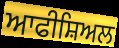
ਆਫੀਸ਼ਿਅਲ